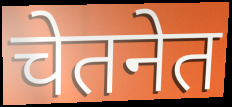
चेतनेत